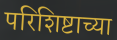
परिशिष्टाच्या